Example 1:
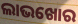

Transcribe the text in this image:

ଲାଭଖୋର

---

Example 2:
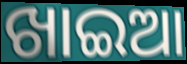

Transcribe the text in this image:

ଖାଇଆ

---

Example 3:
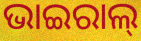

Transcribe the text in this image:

ଭାଇରାଲ୍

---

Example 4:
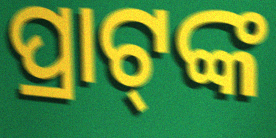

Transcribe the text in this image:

ପ୍ରାଟ୍‍ଙ୍କ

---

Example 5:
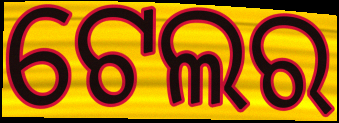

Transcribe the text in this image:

ଟେଲର